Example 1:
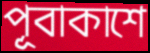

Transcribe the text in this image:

পূবাকাশে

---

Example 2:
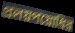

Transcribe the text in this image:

প্রলয়পয়োধির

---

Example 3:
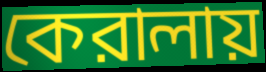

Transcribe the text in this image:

কেরালায়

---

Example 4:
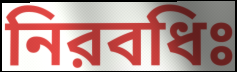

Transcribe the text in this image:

নিরবধিঃ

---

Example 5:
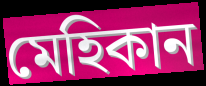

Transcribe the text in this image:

মেহিকান